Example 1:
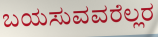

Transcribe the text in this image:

ಬಯಸುವವರೆಲ್ಲರ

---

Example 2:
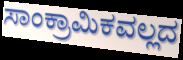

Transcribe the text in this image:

ಸಾಂಕ್ರಾಮಿಕವಲ್ಲದ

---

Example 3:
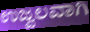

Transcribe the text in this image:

ಉಜ್ವಲವಾಗಿ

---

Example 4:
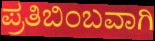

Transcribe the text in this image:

ಪ್ರತಿಬಿಂಬವಾಗಿ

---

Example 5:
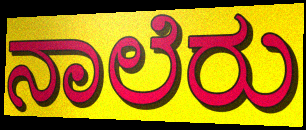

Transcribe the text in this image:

ನಾಲೆರು